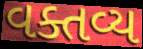
વક્તવ્ય